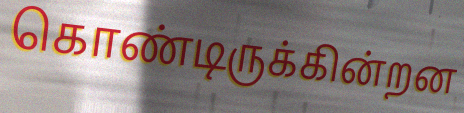
கொண்டிருக்கின்றன